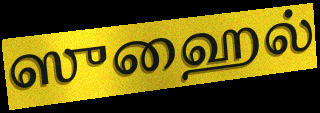
ஸுஹைல்